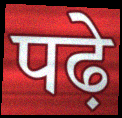
पढ़े